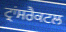
ਟ੍ਰਾਂਸਰੈਕਟਲ